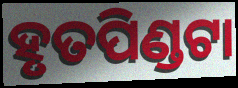
ହୃତପିଣ୍ଡଟା